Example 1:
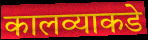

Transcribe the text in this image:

कालव्याकडे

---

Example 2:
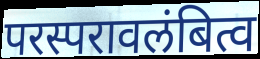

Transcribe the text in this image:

परस्परावलंबित्व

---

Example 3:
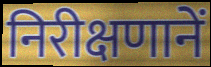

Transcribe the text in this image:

निरीक्षणानें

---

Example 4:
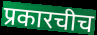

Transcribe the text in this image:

प्रकारचीच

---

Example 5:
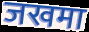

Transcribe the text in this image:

जखमा